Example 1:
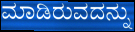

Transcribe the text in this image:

ಮಾಡಿರುವದನ್ನು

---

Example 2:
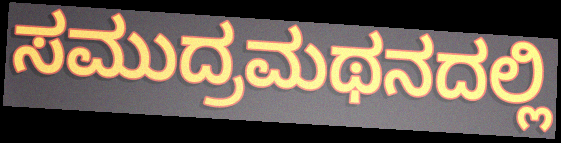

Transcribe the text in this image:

ಸಮುದ್ರಮಥನದಲ್ಲಿ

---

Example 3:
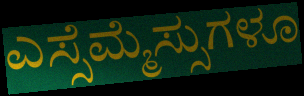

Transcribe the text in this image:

ಎಸ್ಸೆಮ್ಮೆಸ್ಸುಗಳೂ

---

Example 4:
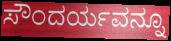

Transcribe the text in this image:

ಸೌಂದರ್ಯವನ್ನೂ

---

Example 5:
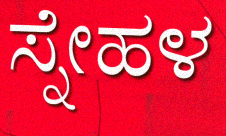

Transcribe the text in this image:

ಸ್ನೇಹಳ